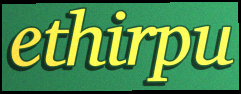
ethirpu